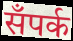
सँपर्क